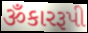
ૐકારરૂપી